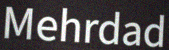
Mehrdad